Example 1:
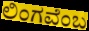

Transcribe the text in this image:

ಲಿಂಗವೆಂಬ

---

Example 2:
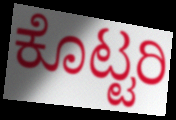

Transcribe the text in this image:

ಕೊಟ್ಟರಿ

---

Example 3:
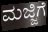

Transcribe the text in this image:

ಮಜ್ಜಿಗೆ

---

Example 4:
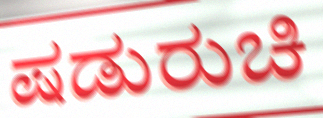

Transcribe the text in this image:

ಷಡುರುಚಿ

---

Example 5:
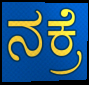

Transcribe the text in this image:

ನಕ್ರೆ